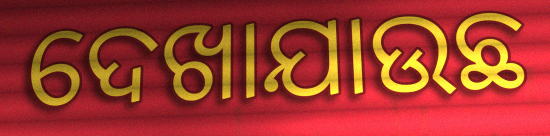
ଦେଖାଯାଉଛ